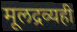
मूलद्रव्यही